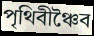
পৃথিবীঞ্চৈব